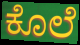
ಕೊಲೆ